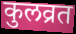
कुलव्रत